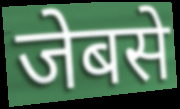
जेबसे